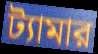
ট্যামার